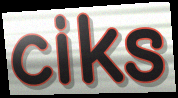
ciks